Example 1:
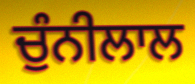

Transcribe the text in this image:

ਚੁੰਨੀਲਾਲ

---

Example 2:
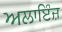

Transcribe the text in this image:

ਅਲਾਇੰਜ਼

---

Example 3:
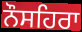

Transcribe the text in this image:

ਨੌਸਹਿਰਾ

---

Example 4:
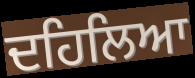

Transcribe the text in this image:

ਦਹਿਲਿਆ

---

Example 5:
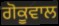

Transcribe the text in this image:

ਗੋਕੂਵਾਲ